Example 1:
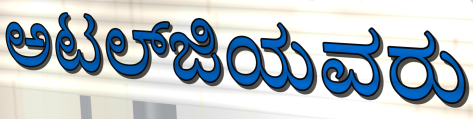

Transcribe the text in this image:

ಅಟಲ್‍ಜಿಯವರು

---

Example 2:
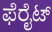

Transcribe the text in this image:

ಫೆರೈಟ್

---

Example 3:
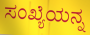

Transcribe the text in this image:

ಸಂಖ್ಯೆಯನ್ನ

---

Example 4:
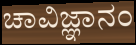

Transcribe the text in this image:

ಚಾವಿಜ್ಞಾನಂ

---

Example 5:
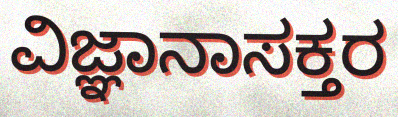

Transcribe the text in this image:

ವಿಜ್ಞಾನಾಸಕ್ತರ